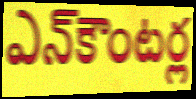
ఎన్‌కౌంటర్ల